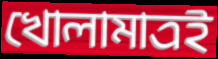
খোলামাত্রই